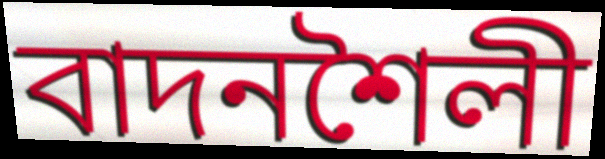
বাদনশৈলী